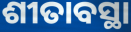
ଶୀତାବସ୍ଥା